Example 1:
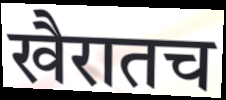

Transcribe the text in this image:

खैरातच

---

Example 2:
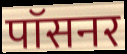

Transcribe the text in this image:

पॉसनर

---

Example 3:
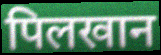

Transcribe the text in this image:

पिलखान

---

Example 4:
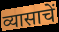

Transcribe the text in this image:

व्यासाचें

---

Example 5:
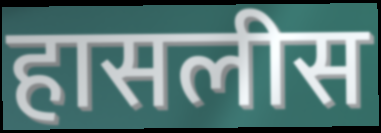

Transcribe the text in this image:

हासलीस